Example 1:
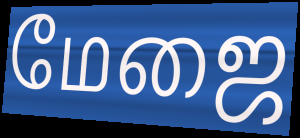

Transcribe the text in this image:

மேஜை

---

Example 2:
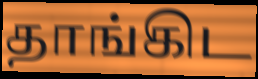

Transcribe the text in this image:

தாங்கிட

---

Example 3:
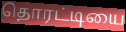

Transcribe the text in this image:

தொரட்டியை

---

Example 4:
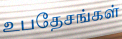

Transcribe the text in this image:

உபதேசங்கள்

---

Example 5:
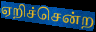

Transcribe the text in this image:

ஏறிச்சென்ற